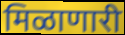
मिळाणारी